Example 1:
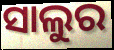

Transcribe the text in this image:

ସାଲୁର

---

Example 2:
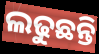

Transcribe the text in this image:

ଲଢୁଛନ୍ତି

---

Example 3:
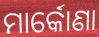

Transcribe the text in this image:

ମାର୍କୋଣା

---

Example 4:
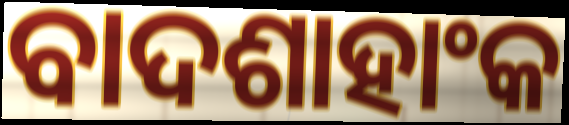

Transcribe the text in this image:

ବାଦଶାହାଂକ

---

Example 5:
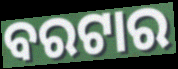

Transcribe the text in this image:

ବରଟାର